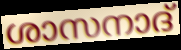
ശാസനാദ്